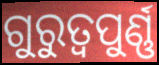
ଗୁରୁତ୍ୱପୁର୍ଣ୍ଣ